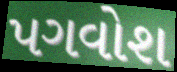
પગવોશ